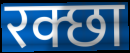
रक्छा